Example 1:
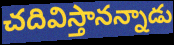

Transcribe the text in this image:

చదివిస్తానన్నాడు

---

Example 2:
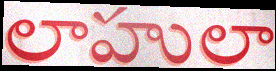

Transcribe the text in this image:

లాహులా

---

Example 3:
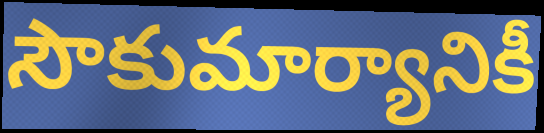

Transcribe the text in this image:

సౌకుమార్యానికీ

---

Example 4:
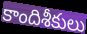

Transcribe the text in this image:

కాందిశీకులు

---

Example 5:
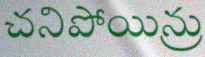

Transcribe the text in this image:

చనిపోయిన్రు